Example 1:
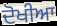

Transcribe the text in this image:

ਦੋਖੀਆ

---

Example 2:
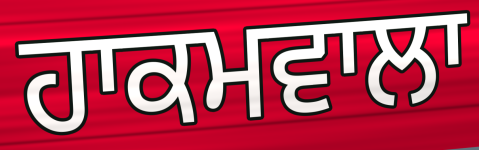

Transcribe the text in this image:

ਹਾਕਮਵਾਲਾ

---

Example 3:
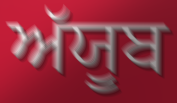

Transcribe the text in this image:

ਅੱਯੂਬ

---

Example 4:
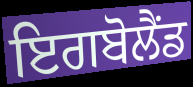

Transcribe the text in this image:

ਇਗਬੋਲੈਂਡ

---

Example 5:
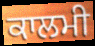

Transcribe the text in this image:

ਕਾਲਮੀ